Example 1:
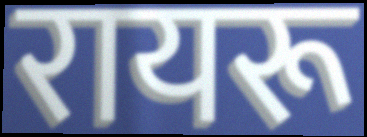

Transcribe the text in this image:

रायरू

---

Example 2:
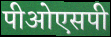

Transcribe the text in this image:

पीओएसपी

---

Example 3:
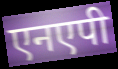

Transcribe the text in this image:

एनएपी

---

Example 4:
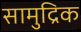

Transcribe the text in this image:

सामुद्रिक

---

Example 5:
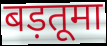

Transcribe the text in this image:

बड़तूमा